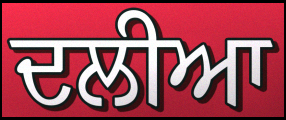
ਦਲੀਆ